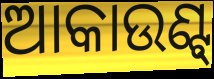
ଆକାଉଣ୍ଟ୍